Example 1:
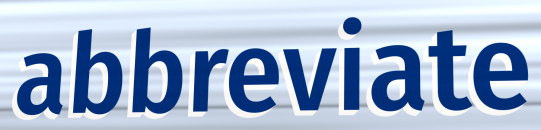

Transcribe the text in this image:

abbreviate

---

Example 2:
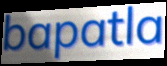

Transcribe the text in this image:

bapatla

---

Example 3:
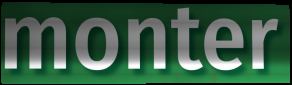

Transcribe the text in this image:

monter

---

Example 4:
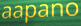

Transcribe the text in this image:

aapano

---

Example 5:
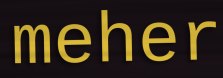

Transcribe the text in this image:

meher